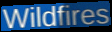
Wildfires